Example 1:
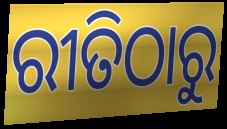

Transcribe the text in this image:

ରୀତିଠାରୁ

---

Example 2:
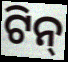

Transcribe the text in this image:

ଟିନ୍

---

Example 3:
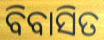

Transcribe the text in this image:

ବିବାସିତ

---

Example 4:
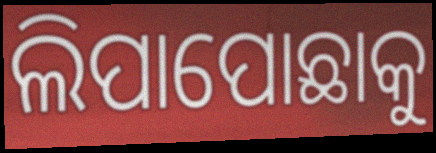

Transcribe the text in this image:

ଲିପାପୋଛାକୁ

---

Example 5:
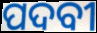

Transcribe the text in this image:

ପଦବୀ